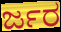
ರ್ಜರ